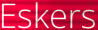
Eskers